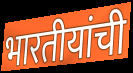
भारतीयांची